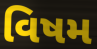
વિષમ